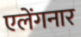
एलेंगनार